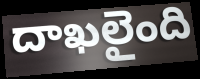
దాఖలైంది